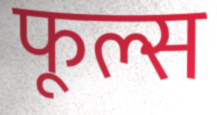
फूल्स